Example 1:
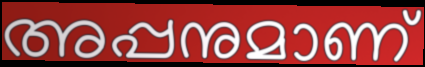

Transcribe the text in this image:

അപ്പനുമാണ്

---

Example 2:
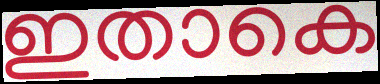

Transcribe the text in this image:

ഇതാകെ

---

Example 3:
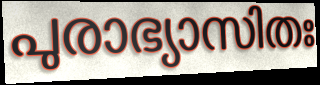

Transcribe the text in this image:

പുരാഭ്യാസിതഃ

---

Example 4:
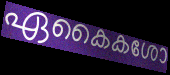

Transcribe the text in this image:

ഏകൈകശോ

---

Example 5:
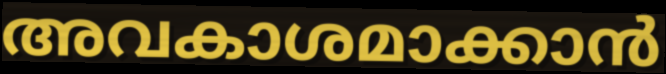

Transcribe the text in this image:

അവകാശമാക്കാൻ